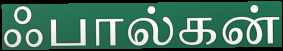
ஃபால்கன்